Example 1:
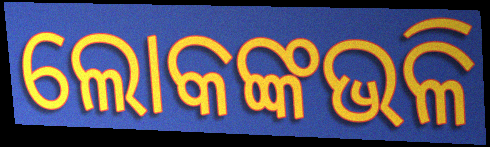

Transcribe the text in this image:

ଲୋକଙ୍କଭଳି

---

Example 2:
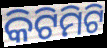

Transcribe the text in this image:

କିଟିମିଟି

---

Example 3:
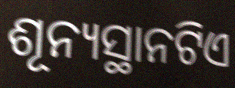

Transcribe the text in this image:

ଶୂନ୍ୟସ୍ଥାନଟିଏ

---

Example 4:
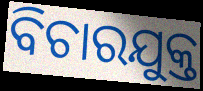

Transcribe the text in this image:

ବିଚାରଯୁକ୍ତ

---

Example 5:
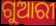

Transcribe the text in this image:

ଗୁଆରୀ